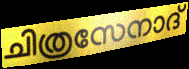
ചിത്രസേനാദ്